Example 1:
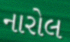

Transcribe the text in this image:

નારોલ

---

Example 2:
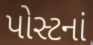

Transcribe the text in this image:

પોસ્ટનાં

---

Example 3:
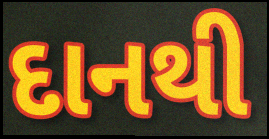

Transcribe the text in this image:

દાનથી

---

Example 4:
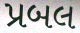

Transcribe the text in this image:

પ્રબલ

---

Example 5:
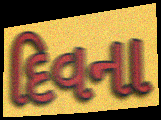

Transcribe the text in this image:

દિવના